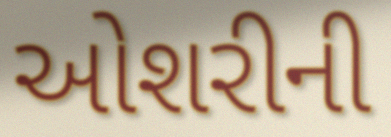
ઓશરીની